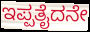
ಇಪ್ಪತೈದನೇ